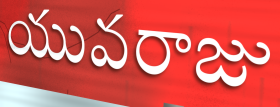
యువరాజు